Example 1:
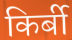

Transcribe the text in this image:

किर्बी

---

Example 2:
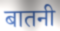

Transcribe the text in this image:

बातनी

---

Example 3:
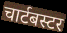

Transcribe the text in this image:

चार्टबस्टर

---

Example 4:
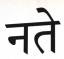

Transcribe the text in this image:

नते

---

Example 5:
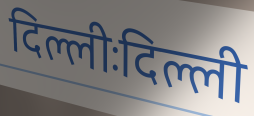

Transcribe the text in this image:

दिल्लीःदिल्ली